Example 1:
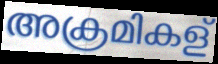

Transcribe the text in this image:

അക്രമികള്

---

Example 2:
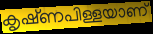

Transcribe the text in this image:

കൃഷ്‌ണപിള്ളയാണ്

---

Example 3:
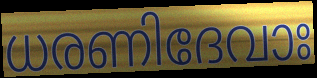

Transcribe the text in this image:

ധരണിദേവാഃ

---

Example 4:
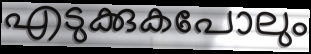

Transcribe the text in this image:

എടുക്കുകപോലും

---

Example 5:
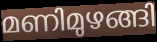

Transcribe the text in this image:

മണിമുഴങ്ങി